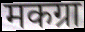
मकग्रा